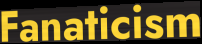
Fanaticism